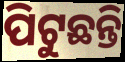
ପିଟୁଛନ୍ତି